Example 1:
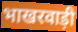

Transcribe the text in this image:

भाखरवाड़ी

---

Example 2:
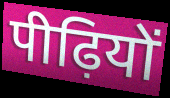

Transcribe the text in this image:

पीढ़ियों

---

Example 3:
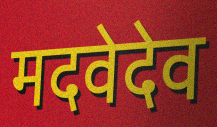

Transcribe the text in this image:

मदवेदेव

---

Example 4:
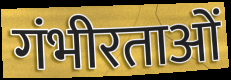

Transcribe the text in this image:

गंभीरताओं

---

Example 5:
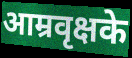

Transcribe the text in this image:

आम्रवृक्षके